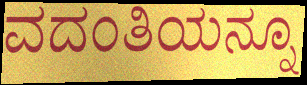
ವದಂತಿಯನ್ನೂ